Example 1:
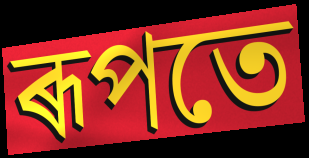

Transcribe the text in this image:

ৰূপতে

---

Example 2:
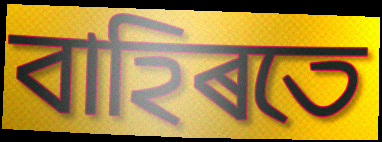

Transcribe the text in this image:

বাহিৰতে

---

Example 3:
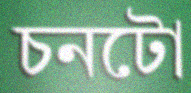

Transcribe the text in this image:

চনটো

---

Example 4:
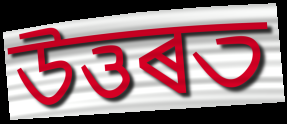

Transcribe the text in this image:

উত্তৰত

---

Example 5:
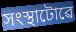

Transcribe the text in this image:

সংস্থাটোৱে